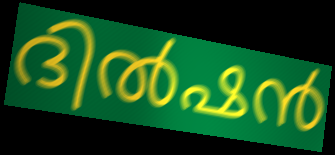
ദിൽഷൻ